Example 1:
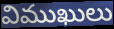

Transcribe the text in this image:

విముఖులు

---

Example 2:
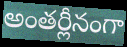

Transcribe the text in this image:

అంతర్లీనంగా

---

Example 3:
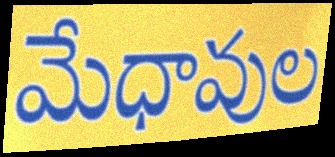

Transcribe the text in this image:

మేధావుల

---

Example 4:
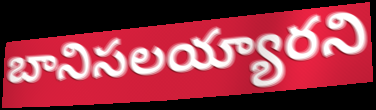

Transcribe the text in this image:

బానిసలయ్యారని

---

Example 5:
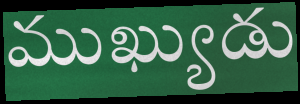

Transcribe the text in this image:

ముఖ్యుడు